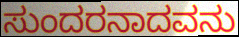
ಸುಂದರನಾದವನು